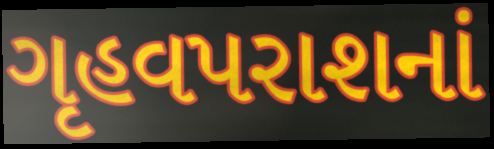
ગૃહવપરાશનાં